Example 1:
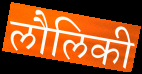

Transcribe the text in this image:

लौलिकी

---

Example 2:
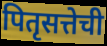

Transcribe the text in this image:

पितृसत्तेची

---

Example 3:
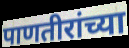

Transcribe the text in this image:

पाणतीरांच्या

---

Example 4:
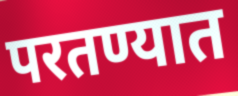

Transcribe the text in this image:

परतण्यात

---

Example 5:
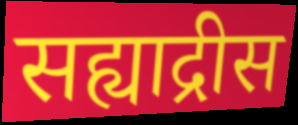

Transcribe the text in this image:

सह्याद्रीस